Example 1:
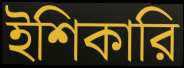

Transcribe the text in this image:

ইশিকারি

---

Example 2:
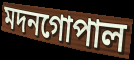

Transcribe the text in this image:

মদনগোপাল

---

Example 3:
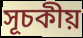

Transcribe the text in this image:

সূচকীয়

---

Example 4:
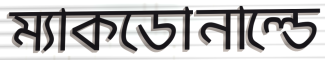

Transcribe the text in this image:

ম্যাকডোনাল্ডে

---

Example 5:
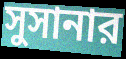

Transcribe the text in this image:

সুসানার